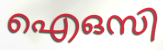
ഐഒസി